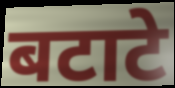
बटाटे